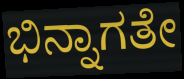
ಭಿನ್ನಾಗತೇ